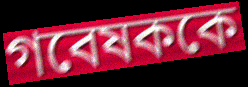
গবেষককে